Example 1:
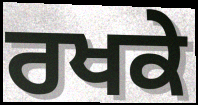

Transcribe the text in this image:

ਰਖਕੇ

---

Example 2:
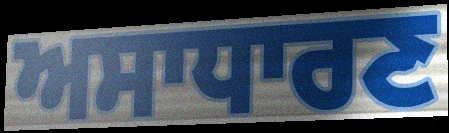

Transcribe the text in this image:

ਅਸਾਧਾਰਣ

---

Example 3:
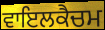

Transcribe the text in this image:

ਵਾਇਲਕੈਚਮ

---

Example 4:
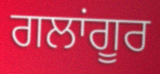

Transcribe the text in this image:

ਗਲਾਂਗੂਰ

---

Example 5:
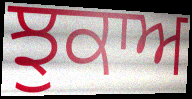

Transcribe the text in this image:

ਝੁਕਾਅ